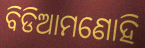
ବିଡିଆମଣୋହି